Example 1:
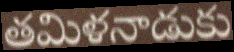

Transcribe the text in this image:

తమిళనాడుకు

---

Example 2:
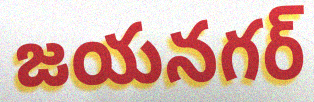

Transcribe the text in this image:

జయనగర్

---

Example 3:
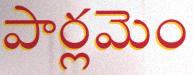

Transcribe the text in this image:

పార్లమెం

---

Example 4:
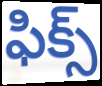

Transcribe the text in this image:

ఫిక్స్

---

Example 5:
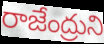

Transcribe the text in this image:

రాజేంద్రుని